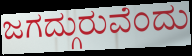
ಜಗದ್ಗುರುವೆಂದು